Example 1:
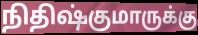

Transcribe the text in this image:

நிதிஷ்குமாருக்கு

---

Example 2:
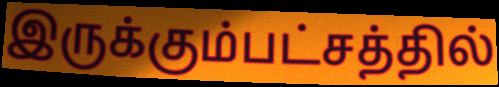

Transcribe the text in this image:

இருக்கும்பட்சத்தில்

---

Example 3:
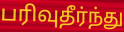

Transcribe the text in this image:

பரிவுதீர்ந்து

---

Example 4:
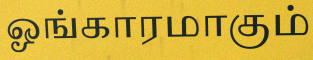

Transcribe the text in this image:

ஓங்காரமாகும்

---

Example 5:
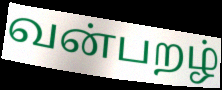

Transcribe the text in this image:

வன்பறழ்